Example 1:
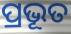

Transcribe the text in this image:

ପ୍ରଭୂତ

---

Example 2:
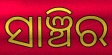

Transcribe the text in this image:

ସାଞ୍ଚିର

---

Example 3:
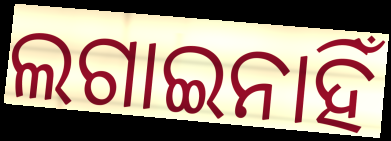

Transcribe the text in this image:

ଲଗାଇନାହିଁ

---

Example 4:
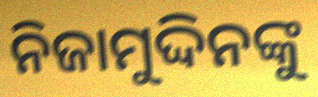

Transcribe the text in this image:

ନିଜାମୁଦ୍ଦିନଙ୍କୁ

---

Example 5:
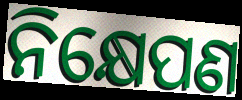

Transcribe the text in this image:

ନିକ୍ଷେପଣ